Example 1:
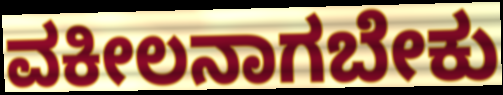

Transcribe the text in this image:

ವಕೀಲನಾಗಬೇಕು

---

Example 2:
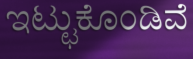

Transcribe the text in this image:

ಇಟ್ಟುಕೊಂಡಿವೆ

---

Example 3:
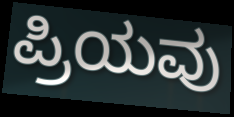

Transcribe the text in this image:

ಪ್ರಿಯವು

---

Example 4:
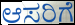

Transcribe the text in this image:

ಆಸರಿಗೆ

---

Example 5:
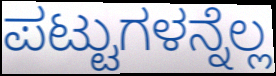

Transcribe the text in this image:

ಪಟ್ಟುಗಳನ್ನೆಲ್ಲ